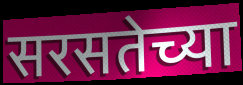
सरसतेच्या